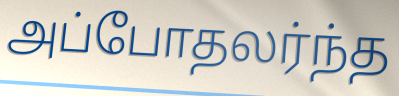
அப்போதலர்ந்த